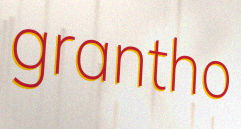
grantho